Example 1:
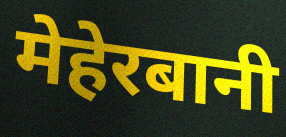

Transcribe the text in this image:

मेहेरबानी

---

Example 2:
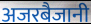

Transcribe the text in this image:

अजरबैजानी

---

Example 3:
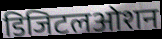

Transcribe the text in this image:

डिजिटलओशन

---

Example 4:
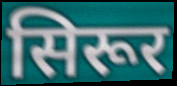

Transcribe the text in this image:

सिरूर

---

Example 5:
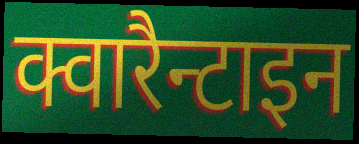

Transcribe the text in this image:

क्वारैन्टाइन